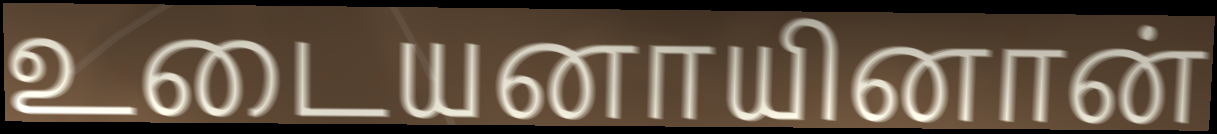
உடையனாயினான்